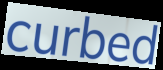
curbed